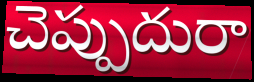
చెప్పుదురా